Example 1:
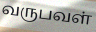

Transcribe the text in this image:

வருபவள்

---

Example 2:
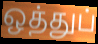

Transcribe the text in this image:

ஒத்துப்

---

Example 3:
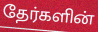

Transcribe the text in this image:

தேர்களின்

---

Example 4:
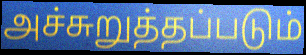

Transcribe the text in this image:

அச்சுறுத்தப்படும்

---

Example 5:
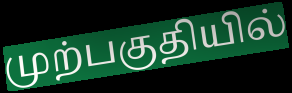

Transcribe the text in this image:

முற்பகுதியில்